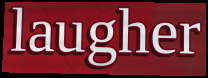
laugher